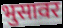
भुसावर